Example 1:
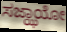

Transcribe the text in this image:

ಸಜ್ಝಾಯೋ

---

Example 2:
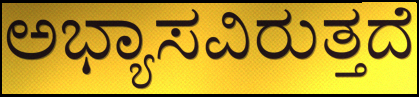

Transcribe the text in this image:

ಅಭ್ಯಾಸವಿರುತ್ತದೆ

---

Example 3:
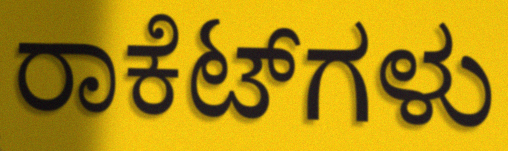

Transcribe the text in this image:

ರಾಕೆಟ್‌ಗಳು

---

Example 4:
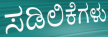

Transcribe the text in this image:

ಸಡಿಲಿಕೆಗಳು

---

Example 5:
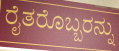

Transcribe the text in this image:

ರೈತರೊಬ್ಬರನ್ನು